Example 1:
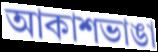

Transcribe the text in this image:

আকাশভাঙা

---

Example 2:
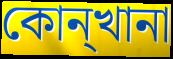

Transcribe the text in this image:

কোন্খানা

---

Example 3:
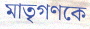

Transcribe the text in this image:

মাতৃগণকে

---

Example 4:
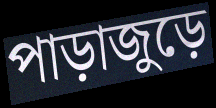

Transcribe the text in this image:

পাড়াজুড়ে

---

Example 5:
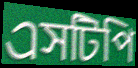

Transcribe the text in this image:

এসটিপি